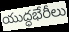
యుద్ధభేరీలు